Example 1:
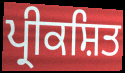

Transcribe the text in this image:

ਪ੍ਰੀਕਸ਼ਿਤ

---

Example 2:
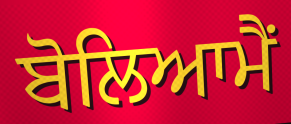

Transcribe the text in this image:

ਬੋਲਿਆਮੈਂ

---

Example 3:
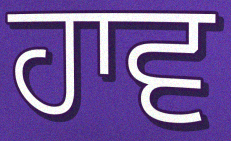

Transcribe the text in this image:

ਹਾਵ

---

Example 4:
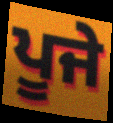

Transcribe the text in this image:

ਪੂਜੇ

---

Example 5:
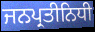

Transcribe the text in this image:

ਜਨਪ੍ਰਤੀਨਿਧੀ